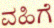
ವಹಿಗೆ